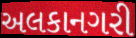
અલકાનગરી